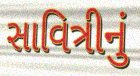
સાવિત્રીનું